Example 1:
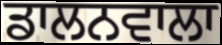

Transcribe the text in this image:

ਡਾਲਨਵਾਲਾ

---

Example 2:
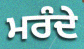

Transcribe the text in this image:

ਮਰੰਦੇ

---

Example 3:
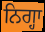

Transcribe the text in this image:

ਨਿਗ੍ਹਾ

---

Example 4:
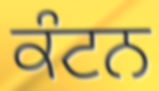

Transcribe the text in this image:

ਕੰਟਨ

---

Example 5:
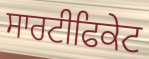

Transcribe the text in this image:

ਸਾਰਟੀਫਿਕੇਟ